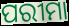
ପରୀମା